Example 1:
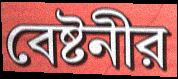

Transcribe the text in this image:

বেষ্টনীর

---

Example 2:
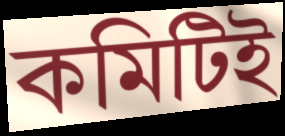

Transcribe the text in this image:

কমিটিই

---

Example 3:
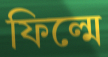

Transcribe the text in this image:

ফিল্মে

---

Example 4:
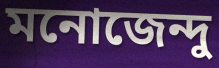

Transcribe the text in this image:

মনোজেন্দু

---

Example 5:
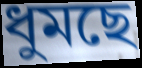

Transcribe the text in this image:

ধুমছে